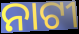
ନାଟୀ